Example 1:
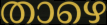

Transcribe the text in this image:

താഴെ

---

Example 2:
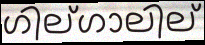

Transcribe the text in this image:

ഗില്ഗാലില്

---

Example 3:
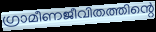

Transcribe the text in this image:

ഗ്രാമീണജീവിതത്തിന്റെ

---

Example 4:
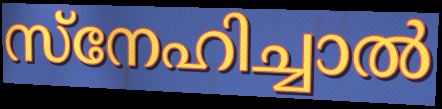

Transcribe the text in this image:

സ്നേഹിച്ചാൽ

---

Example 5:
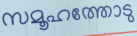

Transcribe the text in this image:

സമൂഹത്തോടു